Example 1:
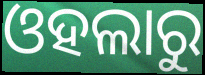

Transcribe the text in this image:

ଓହଲାରୁ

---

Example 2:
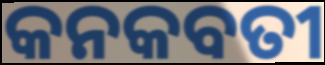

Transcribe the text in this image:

କନକବତୀ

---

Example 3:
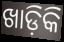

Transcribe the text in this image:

ଖାଡ଼ିକି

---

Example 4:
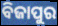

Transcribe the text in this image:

ବିଜାପୁର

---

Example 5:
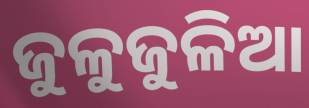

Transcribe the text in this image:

ଜୁଳୁଜୁଳିଆ